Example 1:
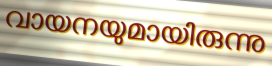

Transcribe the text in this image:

വായനയുമായിരുന്നു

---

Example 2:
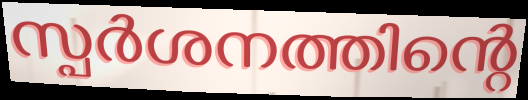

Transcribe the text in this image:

സ്പർശനത്തിന്റെ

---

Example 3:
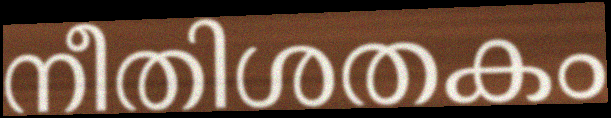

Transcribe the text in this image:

നീതിശതകം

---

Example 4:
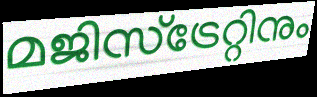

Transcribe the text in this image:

മജിസ്ട്രേറ്റിനും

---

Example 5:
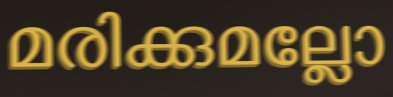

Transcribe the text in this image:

മരിക്കുമല്ലോ